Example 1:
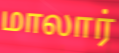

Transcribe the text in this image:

மாலார்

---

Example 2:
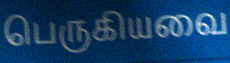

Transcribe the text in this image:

பெருகியவை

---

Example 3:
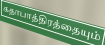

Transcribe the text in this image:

கதாபாத்திரத்தையும்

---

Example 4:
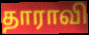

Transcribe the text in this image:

தாராவி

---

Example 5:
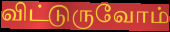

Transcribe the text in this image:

விட்டுருவோம்